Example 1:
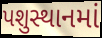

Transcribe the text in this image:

પશુસ્થાનમાં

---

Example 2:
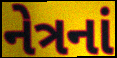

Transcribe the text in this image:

નેત્રનાં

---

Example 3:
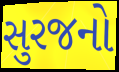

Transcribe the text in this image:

સુરજનો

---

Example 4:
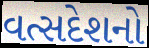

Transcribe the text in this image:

વત્સદેશનો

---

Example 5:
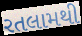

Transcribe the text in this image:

રતલામથી